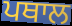
ਪਥਾਲ